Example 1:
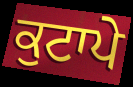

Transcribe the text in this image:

ਕੁਟਾਪੇ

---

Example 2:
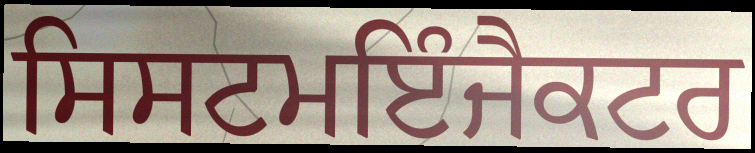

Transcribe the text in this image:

ਸਿਸਟਮਇੰਜੈਕਟਰ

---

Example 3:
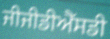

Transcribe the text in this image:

ਜੀਜੀਡੀਐੱਸਡੀ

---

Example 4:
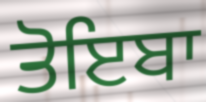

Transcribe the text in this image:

ਤੋਇਬਾ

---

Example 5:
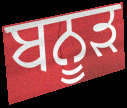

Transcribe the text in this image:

ਬਨੂੜ